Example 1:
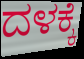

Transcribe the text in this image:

ದಳಕ್ಕೆ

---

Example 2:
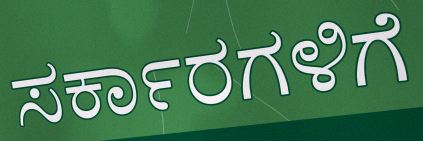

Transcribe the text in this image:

ಸರ್ಕಾರಗಳಿಗೆ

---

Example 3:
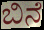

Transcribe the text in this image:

ಬಿನೆ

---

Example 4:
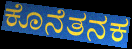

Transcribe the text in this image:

ಕೊನೆತನಕ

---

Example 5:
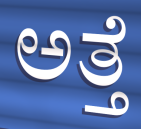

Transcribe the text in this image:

ಅತ್ತೆ